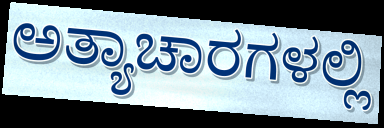
ಅತ್ಯಾಚಾರಗಳಲ್ಲಿ